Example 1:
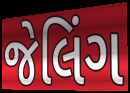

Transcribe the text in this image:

જેલિંગ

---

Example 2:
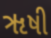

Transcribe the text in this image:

ૠષી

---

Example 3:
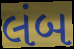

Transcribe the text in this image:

લંબ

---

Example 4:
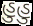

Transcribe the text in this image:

હુહુ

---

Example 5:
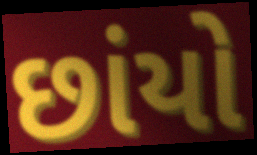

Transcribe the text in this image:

છાંયો